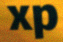
xp